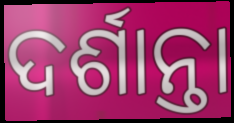
ଦର୍ଶାନ୍ତା